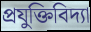
প্রযুক্তিবিদ্যা